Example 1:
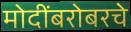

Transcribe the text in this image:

मोदींबरोबरचे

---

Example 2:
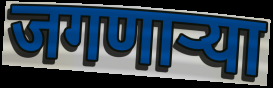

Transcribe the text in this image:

जगणार्‍या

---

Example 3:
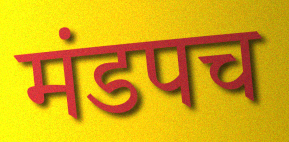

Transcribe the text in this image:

मंडपच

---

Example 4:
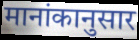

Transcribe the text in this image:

मानांकानुसार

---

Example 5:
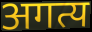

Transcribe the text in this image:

अगत्य